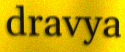
dravya